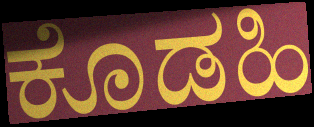
ಕೊಡಹಿ